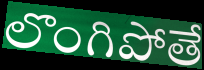
లొంగిపోతే